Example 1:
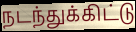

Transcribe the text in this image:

நடந்துக்கிட்டு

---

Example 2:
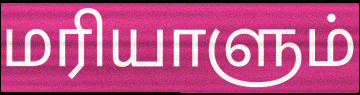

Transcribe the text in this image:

மரியாளும்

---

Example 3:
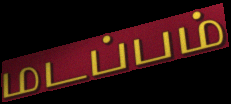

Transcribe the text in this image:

மடப்பம்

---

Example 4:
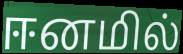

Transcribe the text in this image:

ஈனமில்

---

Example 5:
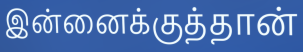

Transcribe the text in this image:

இன்னைக்குத்தான்